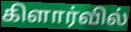
கிளார்வில்